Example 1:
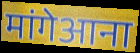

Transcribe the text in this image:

मांगेआना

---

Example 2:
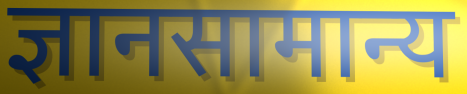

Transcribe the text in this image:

ज्ञानसामान्य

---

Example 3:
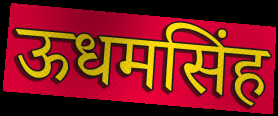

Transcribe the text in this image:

ऊधमसिंह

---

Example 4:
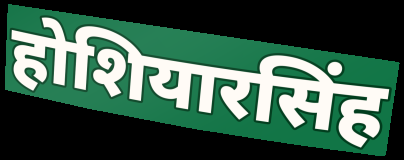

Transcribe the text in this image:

होशियारसिंह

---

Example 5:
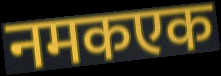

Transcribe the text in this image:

नमकएक